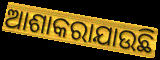
ଆଶାକରାଯାଉଛି